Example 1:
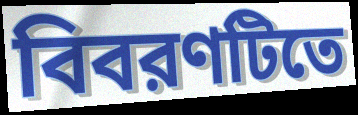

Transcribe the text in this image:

বিবরণটিতে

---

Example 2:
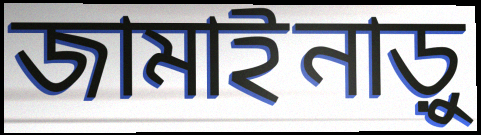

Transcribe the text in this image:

জামাইনাড়ু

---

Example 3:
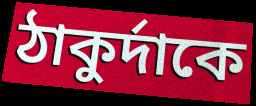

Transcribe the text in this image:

ঠাকুর্দাকে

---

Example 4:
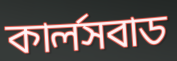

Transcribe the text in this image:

কার্লসবাড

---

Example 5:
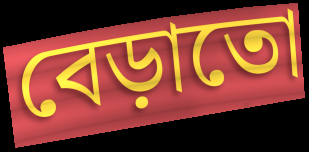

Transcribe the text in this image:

বেড়াতো